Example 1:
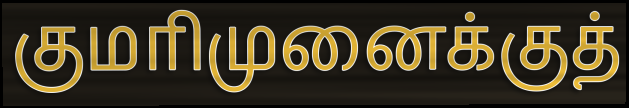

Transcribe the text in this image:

குமரிமுனைக்குத்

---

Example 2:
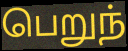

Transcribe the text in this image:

பெறுந்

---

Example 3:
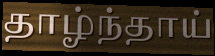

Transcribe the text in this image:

தாழ்ந்தாய்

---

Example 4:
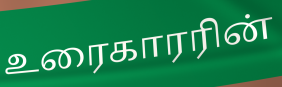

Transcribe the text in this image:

உரைகாரரின்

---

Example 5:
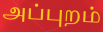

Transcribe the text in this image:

அப்புறம்